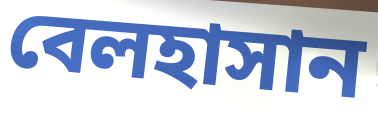
বেলহাসান